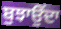
ਬੁਝਾਉਂਦਾ